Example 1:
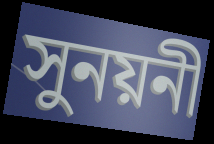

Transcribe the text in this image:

সুনয়নী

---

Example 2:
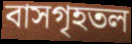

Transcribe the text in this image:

বাসগৃহতল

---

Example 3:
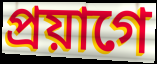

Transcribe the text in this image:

প্রয়াগে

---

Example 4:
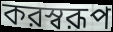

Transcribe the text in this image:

করস্বরূপ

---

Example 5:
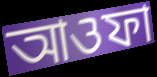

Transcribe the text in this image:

আওফা